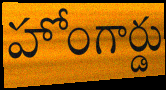
హోంగార్డు